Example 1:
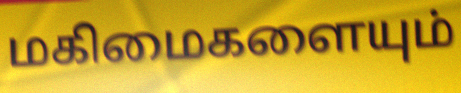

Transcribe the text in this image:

மகிமைகளையும்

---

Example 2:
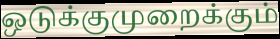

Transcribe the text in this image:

ஒடுக்குமுறைக்கும்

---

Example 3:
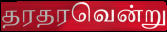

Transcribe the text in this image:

தரதரவென்று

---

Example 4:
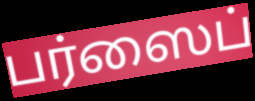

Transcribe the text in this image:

பர்ஸைப்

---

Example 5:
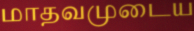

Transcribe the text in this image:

மாதவமுடைய